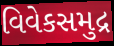
વિવેકસમુદ્ર